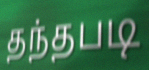
தந்தபடி